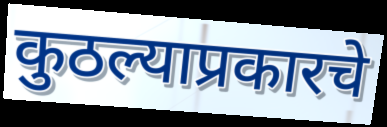
कुठल्याप्रकारचे